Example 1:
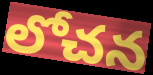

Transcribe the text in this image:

లోచన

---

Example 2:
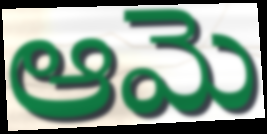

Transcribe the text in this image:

ఆమె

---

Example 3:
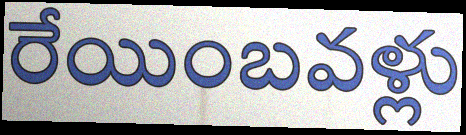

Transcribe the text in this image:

రేయింబవళ్లు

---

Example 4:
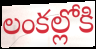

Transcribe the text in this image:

లంకల్లోకి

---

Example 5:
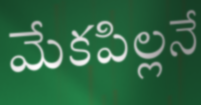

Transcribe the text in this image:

మేకపిల్లనే